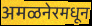
अमळनेरमधून